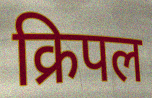
क्रिपल